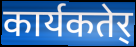
कार्यकतेर्